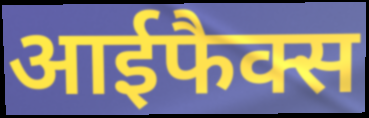
आईफैक्स